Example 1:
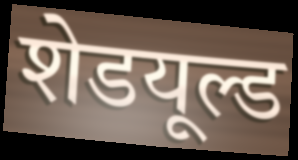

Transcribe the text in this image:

शेडयूल्ड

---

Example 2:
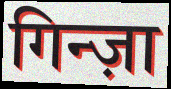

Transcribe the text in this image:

गिन्ज़ा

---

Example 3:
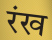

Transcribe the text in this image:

रंख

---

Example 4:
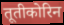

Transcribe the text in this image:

तूतीकोरिन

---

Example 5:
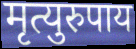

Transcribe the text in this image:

मृत्युरुपाय